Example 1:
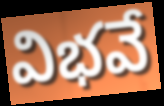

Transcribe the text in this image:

విభవే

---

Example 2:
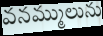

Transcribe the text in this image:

వనమ్ములును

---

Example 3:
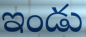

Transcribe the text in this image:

ఇండు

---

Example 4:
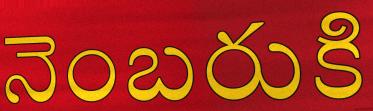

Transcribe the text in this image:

నెంబరుకి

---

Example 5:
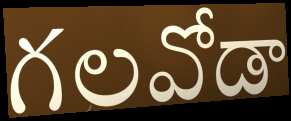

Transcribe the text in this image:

గలవోడా